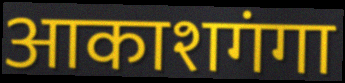
आकाशगंगा